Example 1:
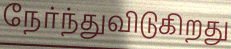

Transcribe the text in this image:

நேர்ந்துவிடுகிறது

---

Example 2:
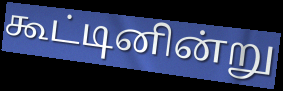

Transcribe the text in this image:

கூட்டினின்று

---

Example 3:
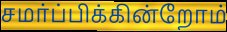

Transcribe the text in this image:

சமர்ப்பிக்கின்றோம்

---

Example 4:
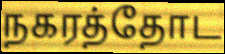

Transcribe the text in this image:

நகரத்தோட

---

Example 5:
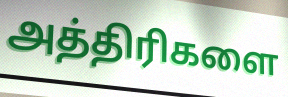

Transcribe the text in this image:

அத்திரிகளை